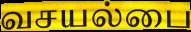
வசயல்பை